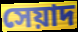
সেয়াদ